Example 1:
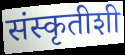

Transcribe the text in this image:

संस्कृतीशी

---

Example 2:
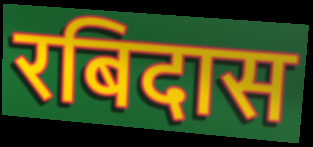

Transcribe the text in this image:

रबिदास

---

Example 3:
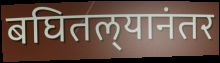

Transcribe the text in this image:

बघितल्यानंतर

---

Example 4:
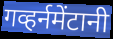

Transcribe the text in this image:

गव्हर्नमेंटानी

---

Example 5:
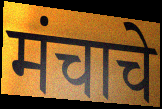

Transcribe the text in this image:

मंचाचे